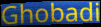
Ghobadi